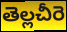
తెల్లచీరె